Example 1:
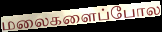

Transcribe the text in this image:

மலைகளைப்போல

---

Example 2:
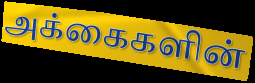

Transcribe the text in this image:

அக்கைகளின்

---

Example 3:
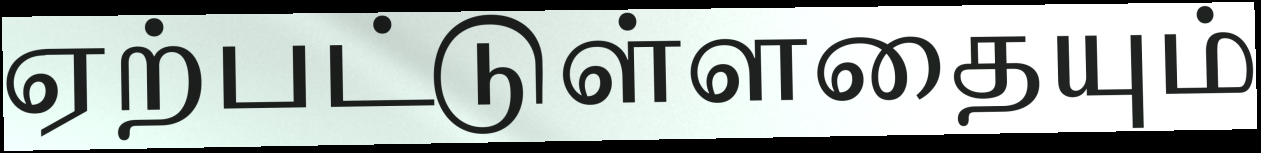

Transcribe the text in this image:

ஏற்பட்டுள்ளதையும்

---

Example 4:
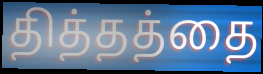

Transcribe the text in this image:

தித்தத்தை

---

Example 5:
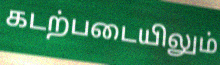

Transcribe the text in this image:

கடற்படையிலும்